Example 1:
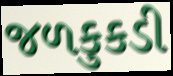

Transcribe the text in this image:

જળકુકડી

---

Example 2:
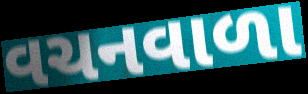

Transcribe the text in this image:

વચનવાળા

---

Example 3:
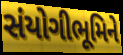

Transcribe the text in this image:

સંયોગીભૂમિને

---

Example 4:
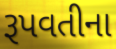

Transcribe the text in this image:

રૂપવતીના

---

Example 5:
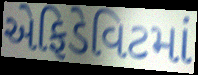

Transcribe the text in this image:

એફિડેવિટમાં